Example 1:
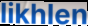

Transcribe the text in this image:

likhlen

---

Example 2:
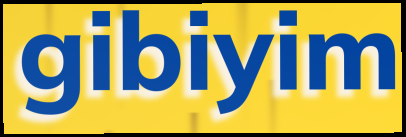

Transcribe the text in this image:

gibiyim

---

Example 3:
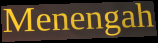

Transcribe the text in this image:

Menengah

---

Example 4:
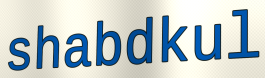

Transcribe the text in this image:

shabdkul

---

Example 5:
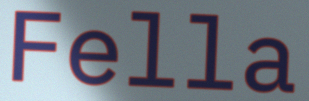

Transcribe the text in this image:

Fella